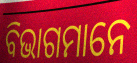
ବିଭାଗମାନେ